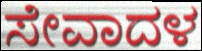
ಸೇವಾದಳ